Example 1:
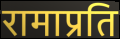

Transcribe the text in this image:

रामाप्रति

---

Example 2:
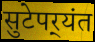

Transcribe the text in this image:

सुटेपर्यंत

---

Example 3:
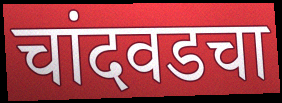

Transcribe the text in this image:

चांदवडचा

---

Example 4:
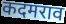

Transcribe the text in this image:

कदमराव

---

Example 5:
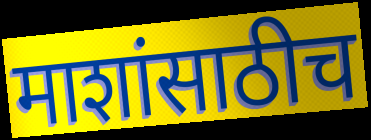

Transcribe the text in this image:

माशांसाठीच